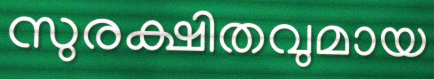
സുരക്ഷിതവുമായ